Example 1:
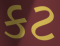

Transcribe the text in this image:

કટ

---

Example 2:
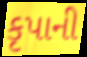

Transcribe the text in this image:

કૃપાની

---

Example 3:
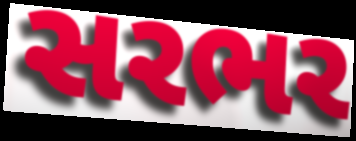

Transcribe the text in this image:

સરભર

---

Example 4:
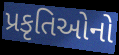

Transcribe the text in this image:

પ્રકૃતિઓનો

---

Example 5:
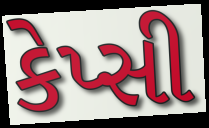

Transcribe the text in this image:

કેપ્સી